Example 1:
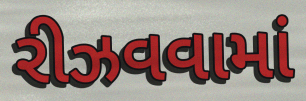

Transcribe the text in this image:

રીઝવવામાં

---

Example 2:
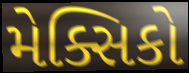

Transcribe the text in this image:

મેક્સિકો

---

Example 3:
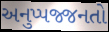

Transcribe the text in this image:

અનુપ્પજ્જનતો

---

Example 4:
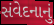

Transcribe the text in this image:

સંવેદનાનું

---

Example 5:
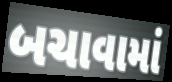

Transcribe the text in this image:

બચાવામાં